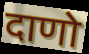
दाणो